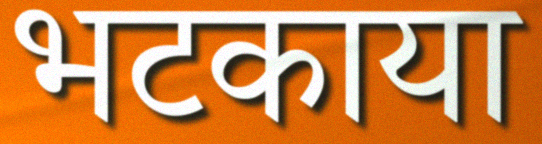
भटकाया